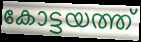
കോട്ടയത്ത്